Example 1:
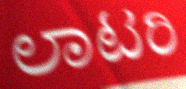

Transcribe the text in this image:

ಲಾಟರಿ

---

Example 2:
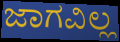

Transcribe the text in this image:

ಜಾಗವಿಲ್ಲ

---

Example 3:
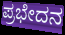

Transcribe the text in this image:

ಪ್ರಭೇದನ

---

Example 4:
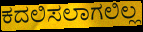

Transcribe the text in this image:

ಕದಲಿಸಲಾಗಲಿಲ್ಲ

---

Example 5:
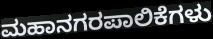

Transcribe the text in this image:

ಮಹಾನಗರಪಾಲಿಕೆಗಳು